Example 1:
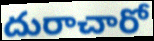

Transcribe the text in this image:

దురాచారో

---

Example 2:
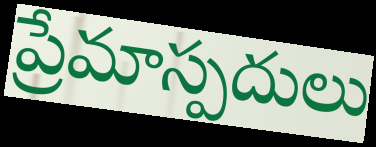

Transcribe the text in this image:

ప్రేమాస్పదులు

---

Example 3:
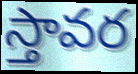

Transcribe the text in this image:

స్తావర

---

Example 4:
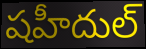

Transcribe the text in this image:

షహీదుల్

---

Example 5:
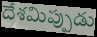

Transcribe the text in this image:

దేశమిప్పుడు